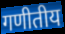
गणीतीय